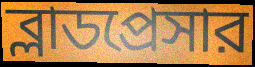
ব্লাডপ্রেসার